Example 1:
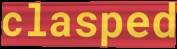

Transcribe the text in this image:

clasped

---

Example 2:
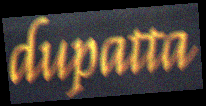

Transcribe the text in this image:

dupatta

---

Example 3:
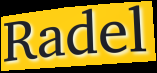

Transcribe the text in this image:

Radel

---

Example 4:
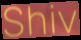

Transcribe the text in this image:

Shiv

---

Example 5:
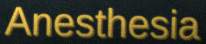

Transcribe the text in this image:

Anesthesia